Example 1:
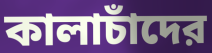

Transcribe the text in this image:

কালাচাঁদের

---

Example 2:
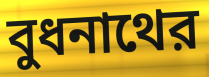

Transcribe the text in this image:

বুধনাথের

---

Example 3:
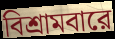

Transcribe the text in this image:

বিশ্রামবারে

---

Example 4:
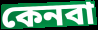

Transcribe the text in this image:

কেনবা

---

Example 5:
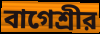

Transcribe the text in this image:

বাগেশ্রীর